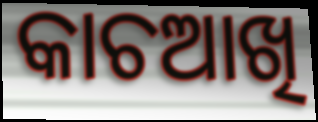
କାଚଆଖି